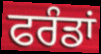
ਫਰੰਡਾਂ